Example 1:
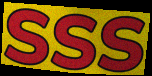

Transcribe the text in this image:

SSS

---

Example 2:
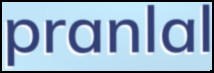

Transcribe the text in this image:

pranlal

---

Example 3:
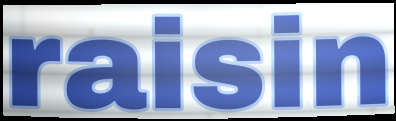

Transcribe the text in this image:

raisin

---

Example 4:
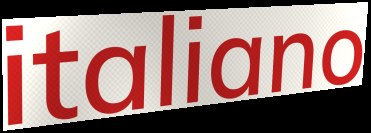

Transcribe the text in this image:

italiano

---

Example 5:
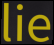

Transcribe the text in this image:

lie